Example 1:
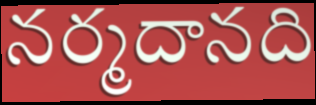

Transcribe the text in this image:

నర్మదానది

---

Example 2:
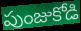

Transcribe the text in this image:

పుంజుకోడి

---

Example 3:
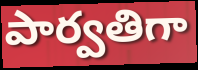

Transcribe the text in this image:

పార్వతిగా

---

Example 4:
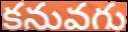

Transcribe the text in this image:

కనువగు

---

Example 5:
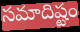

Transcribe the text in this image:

సమాదిష్టం